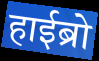
हाईब्रो